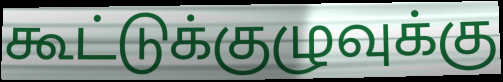
கூட்டுக்குழுவுக்கு